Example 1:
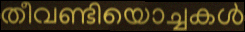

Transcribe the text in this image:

തീവണ്ടിയൊച്ചകൾ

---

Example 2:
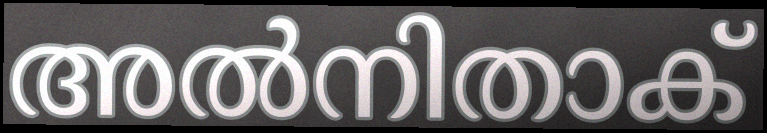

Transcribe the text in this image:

അൽനിതാക്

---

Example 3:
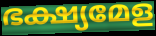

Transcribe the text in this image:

ഭക്ഷ്യമേള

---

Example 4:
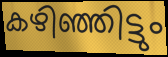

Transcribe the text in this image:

കഴിഞ്ഞിട്ടും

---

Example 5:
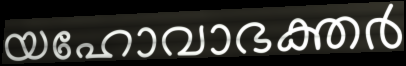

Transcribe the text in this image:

യഹോവാഭക്തർ